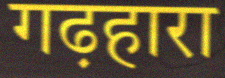
गढ़हारा